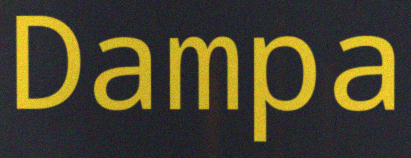
Dampa